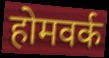
होमवर्क